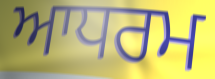
ਆਧਰਮ